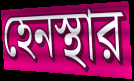
হেনস্থার